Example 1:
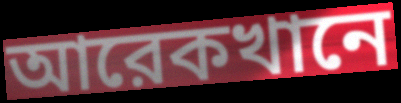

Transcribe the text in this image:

আরেকখানে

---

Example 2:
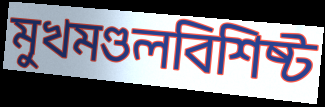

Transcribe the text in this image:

মুখমণ্ডলবিশিষ্ট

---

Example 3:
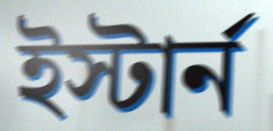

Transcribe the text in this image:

ইস্টার্ন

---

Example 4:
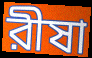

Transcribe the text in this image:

রীষা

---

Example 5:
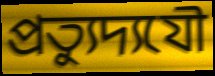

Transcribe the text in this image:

প্রত্যুদ্যযৌ